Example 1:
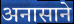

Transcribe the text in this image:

अनासाने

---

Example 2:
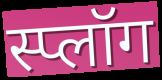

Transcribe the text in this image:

स्प्लॉग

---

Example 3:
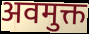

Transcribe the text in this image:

अवमुक्त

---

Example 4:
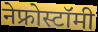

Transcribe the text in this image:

नेफ्रोस्टॉमी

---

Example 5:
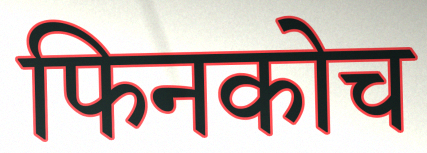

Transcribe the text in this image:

फिनकोच